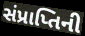
સંપ્રાપ્તિની